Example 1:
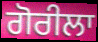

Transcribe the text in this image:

ਗੋਰੀਲਾ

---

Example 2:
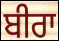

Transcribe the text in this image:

ਬੀਰਾ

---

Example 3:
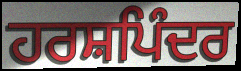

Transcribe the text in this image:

ਹਰਸ਼ਪਿੰਦਰ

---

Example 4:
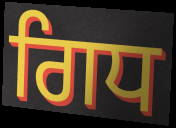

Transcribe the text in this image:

ਗਿਧ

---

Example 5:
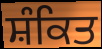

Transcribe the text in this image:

ਸ਼ੰਕਿਤ